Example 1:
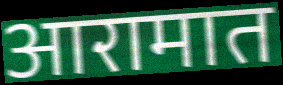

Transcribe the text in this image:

आरामात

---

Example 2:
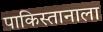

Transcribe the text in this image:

पाकिस्तानाला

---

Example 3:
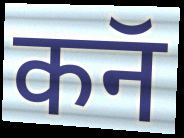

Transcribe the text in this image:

कनॅ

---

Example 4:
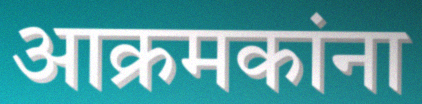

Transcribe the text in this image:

आक्रमकांना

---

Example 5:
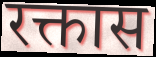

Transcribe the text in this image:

रक्तास